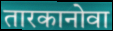
तारकानोवा